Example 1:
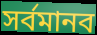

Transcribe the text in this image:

সর্বমানব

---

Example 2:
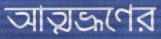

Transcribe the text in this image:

আত্মভ্রূণের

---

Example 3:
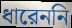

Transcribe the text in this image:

ধারেননি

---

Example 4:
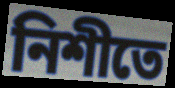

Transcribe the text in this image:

নিশীতে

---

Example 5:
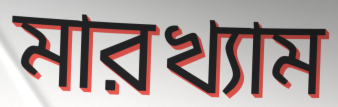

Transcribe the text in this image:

মারখ্যাম